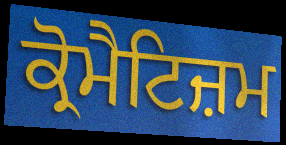
ਕ੍ਰੋਮੈਟਿਜ਼ਮ